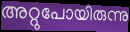
അറ്റുപോയിരുന്നു